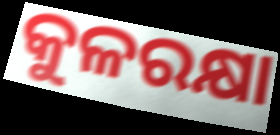
କୁଳରକ୍ଷା